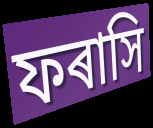
ফৰাসি